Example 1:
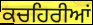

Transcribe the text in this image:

ਕਚਹਿਰੀਆਂ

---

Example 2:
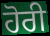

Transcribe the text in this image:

ਹੋਰੀ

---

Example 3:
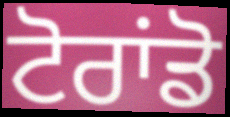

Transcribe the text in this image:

ਟੋਰਾਂਡੋ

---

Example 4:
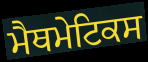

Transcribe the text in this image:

ਮੈਥਮੇਟਿਕਸ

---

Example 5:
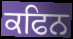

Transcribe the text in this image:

ਕਫਿਨ